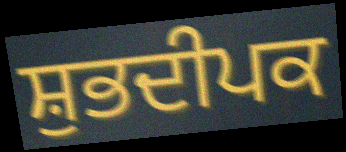
ਸ਼ੁਭਦੀਪਕ